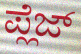
ಪ್ಲೆಜ್